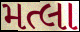
મત્લા